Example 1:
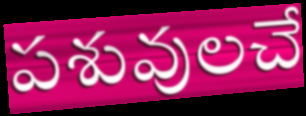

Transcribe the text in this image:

పశువులచే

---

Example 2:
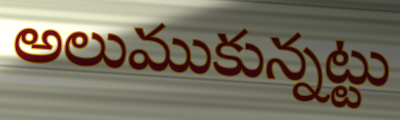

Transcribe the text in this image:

అలుముకున్నట్టు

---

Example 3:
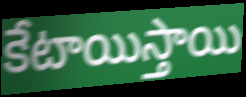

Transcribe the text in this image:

కేటాయిస్తాయి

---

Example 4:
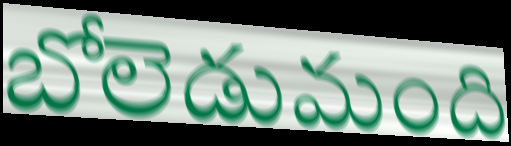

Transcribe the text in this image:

బోలెడుమంది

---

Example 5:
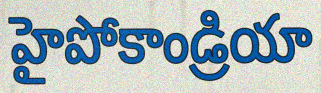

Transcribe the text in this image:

హైపోకాండ్రియా